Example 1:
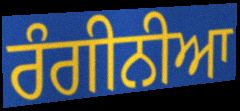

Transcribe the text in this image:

ਰੰਗੀਨੀਆ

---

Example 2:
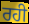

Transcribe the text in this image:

ਰਹੀ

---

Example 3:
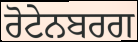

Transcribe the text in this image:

ਰੋਟੇਨਬਰਗ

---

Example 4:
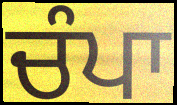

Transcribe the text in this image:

ਚੰਪਾ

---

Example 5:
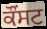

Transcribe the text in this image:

ਕੌਂਸਟ